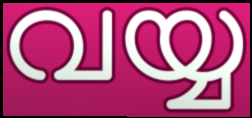
വയ്യ